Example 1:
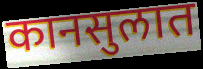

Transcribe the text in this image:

कानसुलात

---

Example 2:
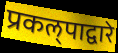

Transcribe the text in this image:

प्रकल्पाद्वारे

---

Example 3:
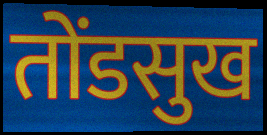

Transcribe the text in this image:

तोंडसुख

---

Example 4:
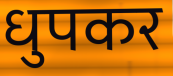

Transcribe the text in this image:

धुपकर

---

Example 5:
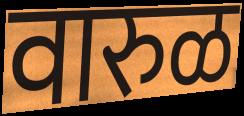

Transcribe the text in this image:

वारुळ